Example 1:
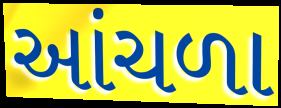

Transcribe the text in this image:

આંચળા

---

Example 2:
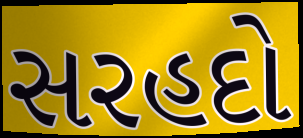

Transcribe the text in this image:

સરહદો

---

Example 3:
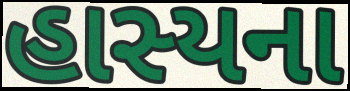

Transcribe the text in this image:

હાસ્યના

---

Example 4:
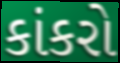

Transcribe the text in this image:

કાંકરો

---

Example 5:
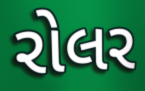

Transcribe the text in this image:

રોલર